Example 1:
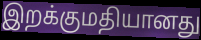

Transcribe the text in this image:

இறக்குமதியானது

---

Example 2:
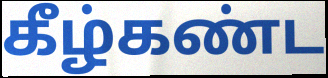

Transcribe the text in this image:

கீழ்கண்ட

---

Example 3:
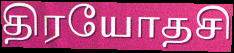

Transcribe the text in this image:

திரயோதசி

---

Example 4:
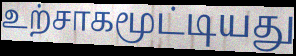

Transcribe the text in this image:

உற்சாகமூட்டியது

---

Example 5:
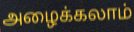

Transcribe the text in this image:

அழைக்கலாம்